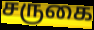
சருகை